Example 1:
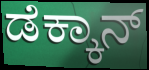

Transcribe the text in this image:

ಡೆಕ್ಕಾನ್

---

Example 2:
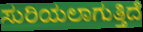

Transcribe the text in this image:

ಸುರಿಯಲಾಗುತ್ತಿದೆ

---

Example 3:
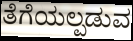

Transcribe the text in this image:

ತೆಗೆಯಲ್ಪಡುವ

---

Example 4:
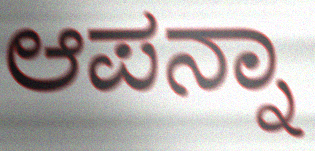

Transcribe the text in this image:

ಆಪನ್ನಾ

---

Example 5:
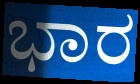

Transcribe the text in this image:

ಭಾರ